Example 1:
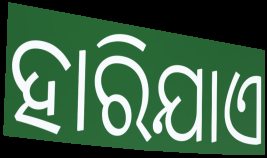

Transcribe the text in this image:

ହାରିଯାଏ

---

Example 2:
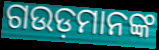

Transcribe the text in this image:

ଗଉଡ଼ମାନଙ୍କ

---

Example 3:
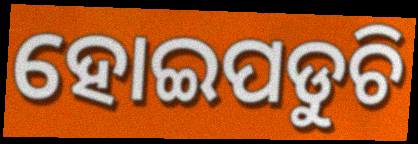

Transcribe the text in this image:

ହୋଇପଡୁଚି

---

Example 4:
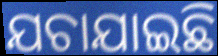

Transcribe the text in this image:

ଯଚାଯାଇଛି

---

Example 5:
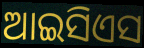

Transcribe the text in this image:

ଆଇସିଏସ